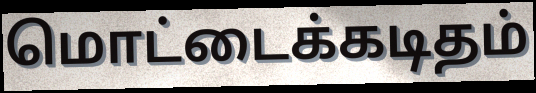
மொட்டைக்கடிதம்